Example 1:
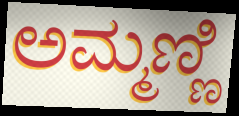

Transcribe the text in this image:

ಅಮ್ಮಣ್ಣಿ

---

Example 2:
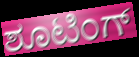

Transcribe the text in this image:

ಶೂಟಿಂಗ್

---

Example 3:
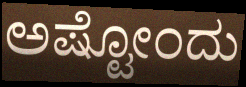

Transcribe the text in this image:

ಅಷ್ಟೋಂದು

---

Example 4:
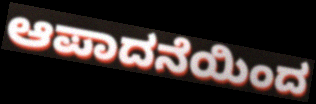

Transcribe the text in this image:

ಆಪಾದನೆಯಿಂದ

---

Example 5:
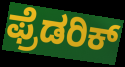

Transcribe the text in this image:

ಫ್ರೆಡರಿಕ್